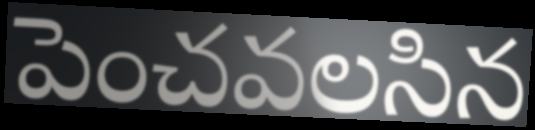
పెంచవలసిన